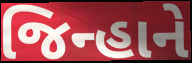
જિન્હાને